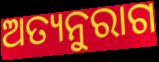
ଅତ୍ୟନୁରାଗ